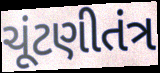
ચૂંટણીતંત્ર